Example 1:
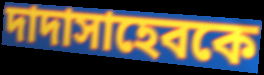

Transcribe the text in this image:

দাদাসাহেবকে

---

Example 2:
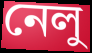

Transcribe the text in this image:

নেলু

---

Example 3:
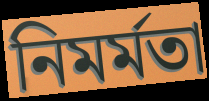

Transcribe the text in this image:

নিমর্মতা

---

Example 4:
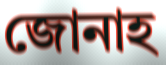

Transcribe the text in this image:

জোনাহ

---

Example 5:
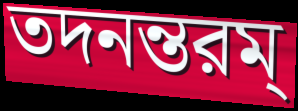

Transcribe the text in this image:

তদনন্তরম্